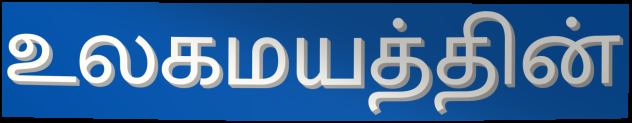
உலகமயத்தின்